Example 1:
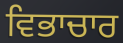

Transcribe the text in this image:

ਵਿਭਾਚਾਰ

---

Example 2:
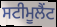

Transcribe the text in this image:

ਸਟੀਮੂਲੈਂਟ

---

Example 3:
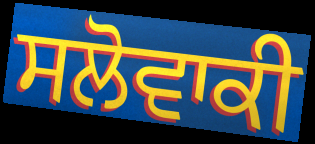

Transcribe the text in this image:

ਸਲੋਵਾਕੀ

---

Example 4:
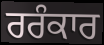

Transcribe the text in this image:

ਰਰੰਕਾਰ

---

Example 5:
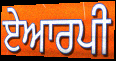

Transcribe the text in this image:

ਏਆਰਪੀ